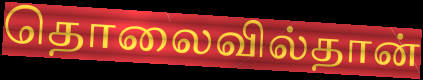
தொலைவில்தான்